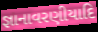
જ્ઞાનાવરણીયાદિ